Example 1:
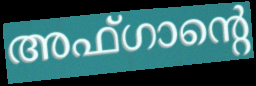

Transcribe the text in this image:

അഫ്ഗാന്റെ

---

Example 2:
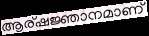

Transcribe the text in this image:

ആര്ഷജ്ഞാനമാണ്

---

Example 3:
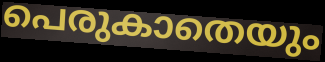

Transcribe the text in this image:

പെരുകാതെയും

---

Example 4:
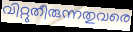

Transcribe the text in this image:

വിറ്റുതീരുന്നതുവരെ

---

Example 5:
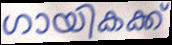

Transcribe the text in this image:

ഗായികക്ക്